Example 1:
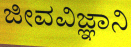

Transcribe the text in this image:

ಜೀವವಿಜ್ಞಾನಿ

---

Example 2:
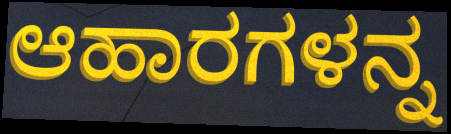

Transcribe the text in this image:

ಆಹಾರಗಳನ್ನ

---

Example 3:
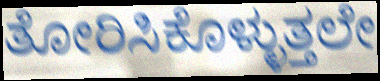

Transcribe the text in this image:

ತೋರಿಸಿಕೊಳ್ಳುತ್ತಲೇ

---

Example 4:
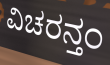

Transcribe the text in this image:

ವಿಚರನ್ತಂ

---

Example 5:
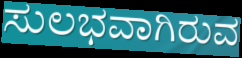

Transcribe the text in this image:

ಸುಲಭವಾಗಿರುವ